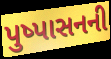
પુષ્પાસનની